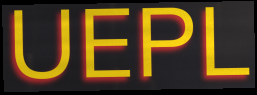
UEPL